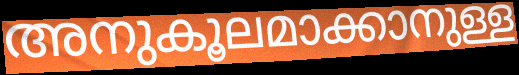
അനുകൂലമാക്കാനുള്ള